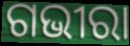
ଗଭୀରା